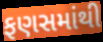
ફણસમાંથી